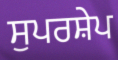
ਸੁਪਰਸ਼ੇਪ